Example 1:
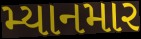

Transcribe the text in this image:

મ્યાનમાર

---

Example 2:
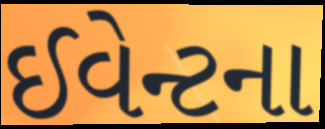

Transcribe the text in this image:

ઈવેન્ટના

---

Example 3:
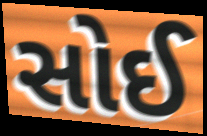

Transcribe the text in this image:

સોઈ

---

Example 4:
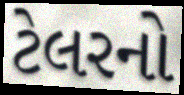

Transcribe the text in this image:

ટેલરનો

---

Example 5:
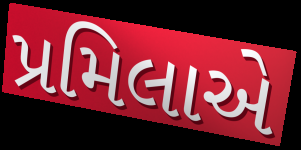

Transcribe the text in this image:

પ્રમિલાએ